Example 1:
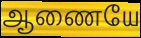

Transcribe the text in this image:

ஆணையே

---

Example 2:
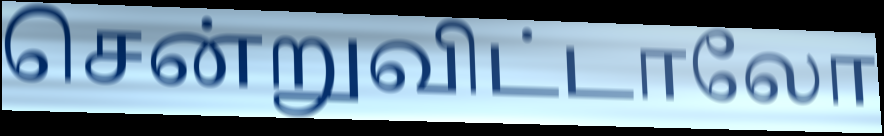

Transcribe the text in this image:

சென்றுவிட்டாலோ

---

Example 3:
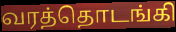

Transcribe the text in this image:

வரத்தொடங்கி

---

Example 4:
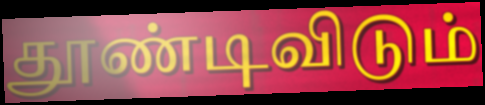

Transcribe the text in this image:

தூண்டிவிடும்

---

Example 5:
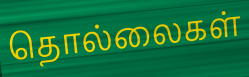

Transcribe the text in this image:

தொல்லைகள்